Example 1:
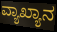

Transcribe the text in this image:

ವ್ಯಾಖ್ಯಾನ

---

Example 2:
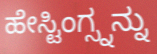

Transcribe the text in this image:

ಹೇಸ್ಟಿಂಗ್ಸ್ನನ್ನು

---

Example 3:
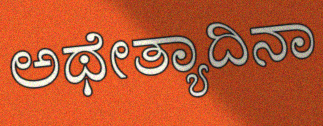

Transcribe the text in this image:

ಅಥೇತ್ಯಾದಿನಾ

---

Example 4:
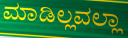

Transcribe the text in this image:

ಮಾಡಿಲ್ಲವಲ್ಲಾ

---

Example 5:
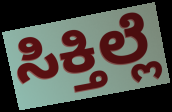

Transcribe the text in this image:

ಸಿಕ್ತಿಲ್ಲೆ